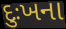
દુઃખના